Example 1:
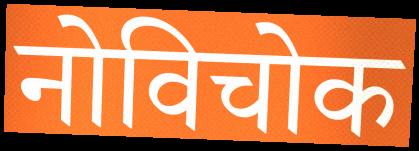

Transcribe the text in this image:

नोविचोक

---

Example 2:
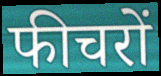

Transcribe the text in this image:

फीचरों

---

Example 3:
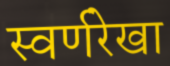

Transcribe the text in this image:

स्वर्णरेखा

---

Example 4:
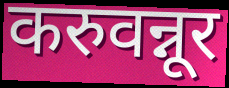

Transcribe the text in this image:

करुवन्नूर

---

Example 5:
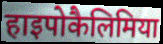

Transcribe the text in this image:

हाइपोकैलिमिया